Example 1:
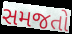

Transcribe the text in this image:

સમજતો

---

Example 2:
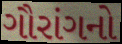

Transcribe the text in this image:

ગૌરાંગનો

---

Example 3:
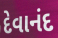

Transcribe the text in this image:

દેવાનંદ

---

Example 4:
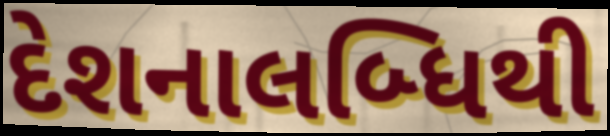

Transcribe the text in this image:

દેશનાલબ્ધિથી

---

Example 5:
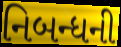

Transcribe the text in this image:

નિબન્ધની